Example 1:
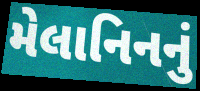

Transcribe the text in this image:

મેલાનિનનું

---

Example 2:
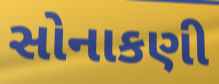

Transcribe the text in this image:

સોનાકણી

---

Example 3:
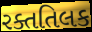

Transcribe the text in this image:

રક્તતિલક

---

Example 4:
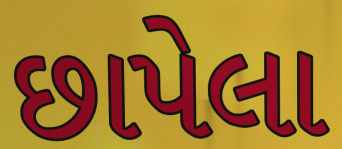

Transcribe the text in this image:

છાપેલા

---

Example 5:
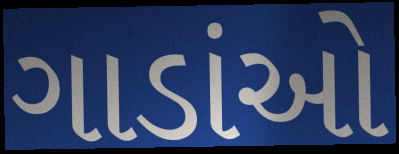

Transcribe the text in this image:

ગાડાંઓ